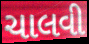
ચાલવી